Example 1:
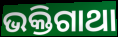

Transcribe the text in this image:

ଭକ୍ତିଗାଥା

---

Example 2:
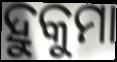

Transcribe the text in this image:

ହୁକୁମା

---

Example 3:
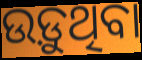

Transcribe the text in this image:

ଉଡ଼ୁଥିବା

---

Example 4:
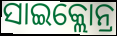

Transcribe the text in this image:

ସାଇକ୍ଲୋନ୍ର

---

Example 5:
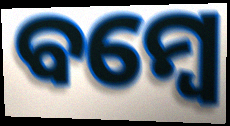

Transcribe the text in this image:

ବମ୍ୱେ